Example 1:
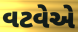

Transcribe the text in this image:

વટવેએ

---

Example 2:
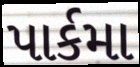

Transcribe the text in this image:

પાર્કમા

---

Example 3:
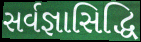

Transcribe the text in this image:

સર્વજ્ઞાસિદ્ધિ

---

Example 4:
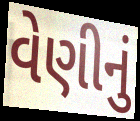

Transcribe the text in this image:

વેણીનું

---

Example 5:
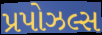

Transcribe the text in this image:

પ્રપોઝલ્સ